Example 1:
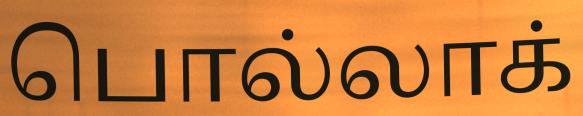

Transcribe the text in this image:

பொல்லாக்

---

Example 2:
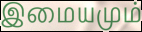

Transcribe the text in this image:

இமையமும்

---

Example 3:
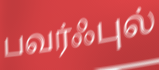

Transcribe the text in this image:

பவர்ஃபுல்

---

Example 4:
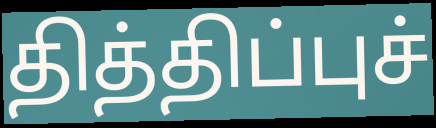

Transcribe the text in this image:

தித்திப்புச்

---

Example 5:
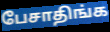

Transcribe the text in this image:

பேசாதிங்க